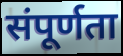
संपूर्णता